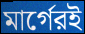
মার্গেরই